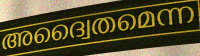
അദ്വൈതമെന്ന